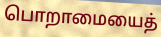
பொறாமையைத்